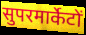
सुपरमार्केटों